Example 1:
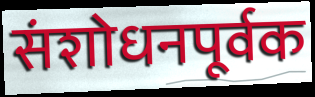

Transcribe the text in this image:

संशोधनपूर्वक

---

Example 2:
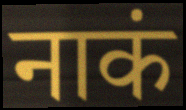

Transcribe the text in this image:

नाकं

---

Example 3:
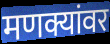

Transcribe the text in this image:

मणक्यांवर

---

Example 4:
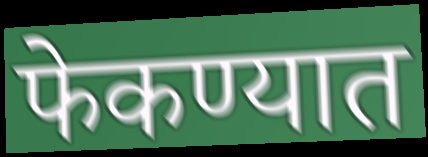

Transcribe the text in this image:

फेकण्यात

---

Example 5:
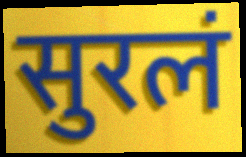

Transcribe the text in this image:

सुरलं